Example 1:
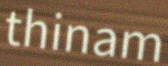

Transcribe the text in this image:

thinam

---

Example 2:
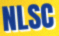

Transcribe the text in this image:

NLSC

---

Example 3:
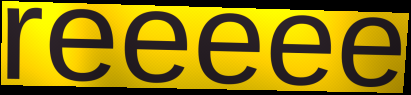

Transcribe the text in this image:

reeeee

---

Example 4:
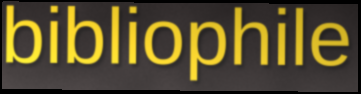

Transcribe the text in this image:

bibliophile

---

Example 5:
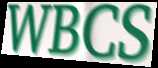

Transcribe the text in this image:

WBCS